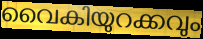
വൈകിയുറക്കവും